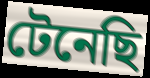
টেনেছি